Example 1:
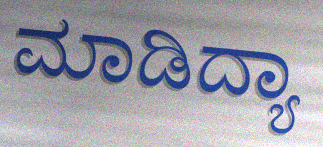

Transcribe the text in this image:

ಮಾಡಿದ್ಯಾ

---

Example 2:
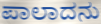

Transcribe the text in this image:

ಪಾಲಾದನು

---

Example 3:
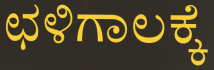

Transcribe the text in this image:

ಛಳಿಗಾಲಕ್ಕೆ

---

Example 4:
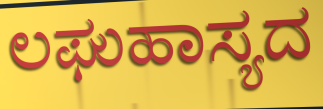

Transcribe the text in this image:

ಲಘುಹಾಸ್ಯದ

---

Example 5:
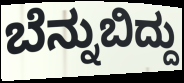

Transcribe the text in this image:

ಬೆನ್ನುಬಿದ್ದು